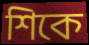
শিকে